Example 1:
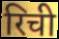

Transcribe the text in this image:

रिची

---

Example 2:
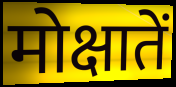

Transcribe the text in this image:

मोक्षातें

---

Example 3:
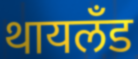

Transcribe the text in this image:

थायलँड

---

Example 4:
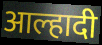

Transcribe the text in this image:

आल्हादी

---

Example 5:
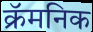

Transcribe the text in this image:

क्रॅमनिक